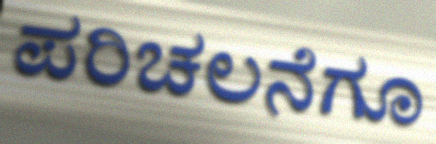
ಪರಿಚಲನೆಗೂ